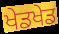
ਖੇਡਖੇਡ